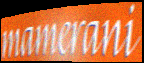
mamerani